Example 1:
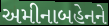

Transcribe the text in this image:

અમીનાબહેનને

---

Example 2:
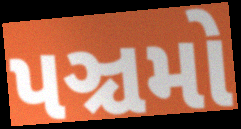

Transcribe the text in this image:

પઞ્ચમો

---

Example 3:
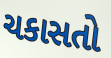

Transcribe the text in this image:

ચકાસતો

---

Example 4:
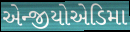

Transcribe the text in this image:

એન્જીયોએડિમા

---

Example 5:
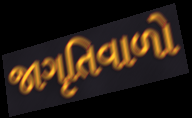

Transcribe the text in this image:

જાગૃતિવાળો